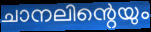
ചാനലിന്റെയും